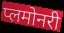
प्लमोनरी